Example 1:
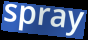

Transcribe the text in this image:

spray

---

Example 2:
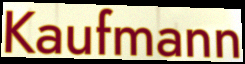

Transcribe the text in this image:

Kaufmann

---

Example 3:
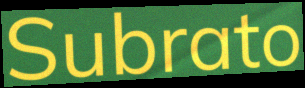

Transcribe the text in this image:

Subrato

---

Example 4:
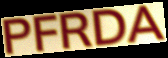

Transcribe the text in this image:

PFRDA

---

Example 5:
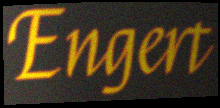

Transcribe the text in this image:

Engert